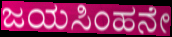
ಜಯಸಿಂಹನೇ